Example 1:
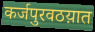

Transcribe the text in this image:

कर्जपुरवठय़ात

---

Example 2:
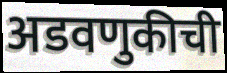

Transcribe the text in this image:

अडवणुकीची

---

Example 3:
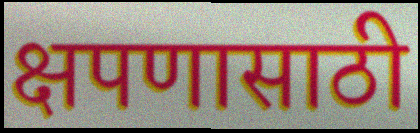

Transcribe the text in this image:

क्षपणासाठी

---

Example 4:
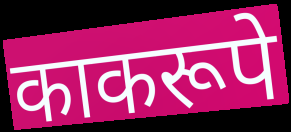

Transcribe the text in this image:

काकरूपे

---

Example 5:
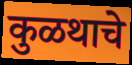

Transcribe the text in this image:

कुळथाचे